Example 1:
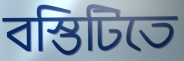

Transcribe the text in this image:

বস্তিটিতে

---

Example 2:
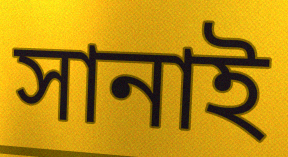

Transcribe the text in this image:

সানাই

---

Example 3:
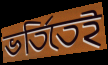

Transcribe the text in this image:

ভর্তিতেই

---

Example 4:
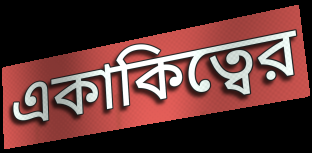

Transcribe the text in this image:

একাকিত্বের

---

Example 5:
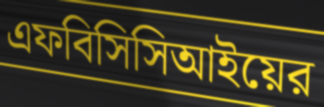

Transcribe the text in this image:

এফবিসিসিআইয়ের